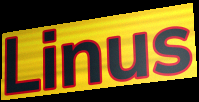
Linus